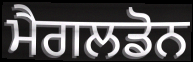
ਮੈਗਲਡੋਨ